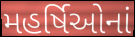
મહર્ષિઓનાં